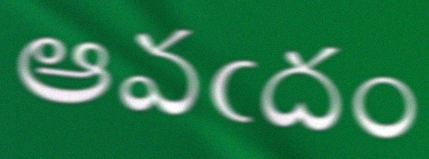
ఆవఁదం